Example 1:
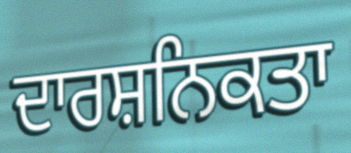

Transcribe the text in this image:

ਦਾਰਸ਼ਨਿਕਤਾ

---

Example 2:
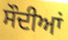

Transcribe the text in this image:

ਸੌਦੀਆਂ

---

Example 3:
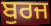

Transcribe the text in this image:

ਬੁਰਜ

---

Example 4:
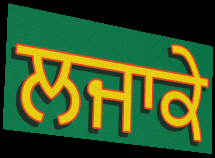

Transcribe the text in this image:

ਲਜਾਕੇ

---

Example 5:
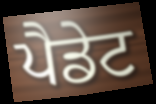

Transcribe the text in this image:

ਪੈਡੇਟ